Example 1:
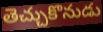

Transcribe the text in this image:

తెచ్చుకొనుడు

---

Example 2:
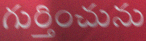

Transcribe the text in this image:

గుర్తించును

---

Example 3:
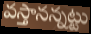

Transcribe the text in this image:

వస్తానన్నట్టు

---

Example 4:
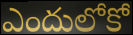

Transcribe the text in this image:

ఎందులోకో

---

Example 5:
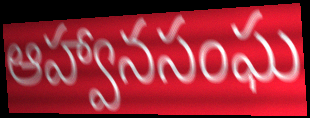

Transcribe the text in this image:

ఆహ్వానసంఘ